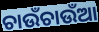
ଚାଉଁଚାଉଁଆ